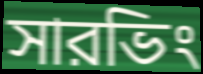
সারভিং